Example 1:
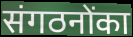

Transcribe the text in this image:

संगठनोंका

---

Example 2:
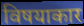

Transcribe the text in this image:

विषयाकार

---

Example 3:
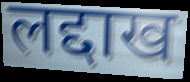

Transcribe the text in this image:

लद्दाख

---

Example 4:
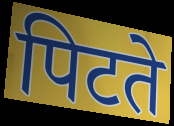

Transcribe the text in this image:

पिटते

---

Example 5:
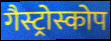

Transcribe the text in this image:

गैस्ट्रोस्कोप